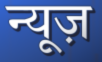
न्‍यूज़